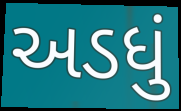
અડધું